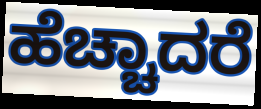
ಹೆಚ್ಚಾದರೆ